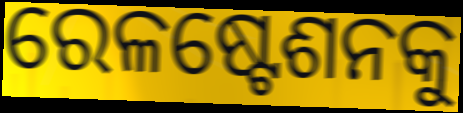
ରେଳଷ୍ଟେଶନକୁ